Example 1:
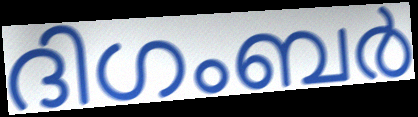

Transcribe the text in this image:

ദിഗംബർ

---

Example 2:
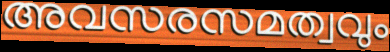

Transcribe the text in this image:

അവസരസമത്വവും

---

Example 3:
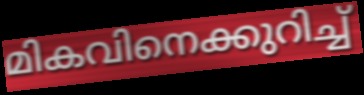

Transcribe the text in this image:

മികവിനെക്കുറിച്ച്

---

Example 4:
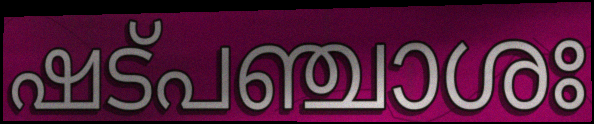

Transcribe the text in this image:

ഷട്പഞ്ചാശഃ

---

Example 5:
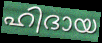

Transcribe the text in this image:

ഹിദായ